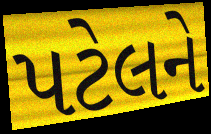
પટેલને